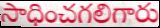
సాధించగలిగారు